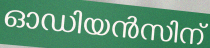
ഓഡിയൻസിന്